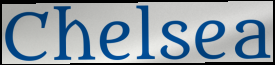
Chelsea